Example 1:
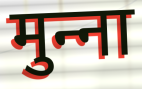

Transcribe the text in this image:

मुन्ना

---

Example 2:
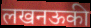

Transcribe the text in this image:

लखनऊकी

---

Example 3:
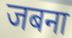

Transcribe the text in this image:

जबना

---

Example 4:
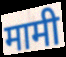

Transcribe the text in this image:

मामी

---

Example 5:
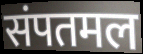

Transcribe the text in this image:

संपतमल